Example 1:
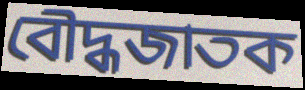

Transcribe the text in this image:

বৌদ্ধজাতক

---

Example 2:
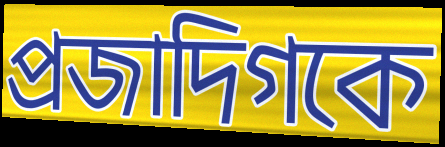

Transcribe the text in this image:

প্রজাদিগকে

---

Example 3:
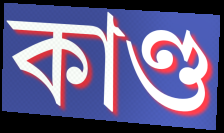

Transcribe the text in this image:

কাণ্ড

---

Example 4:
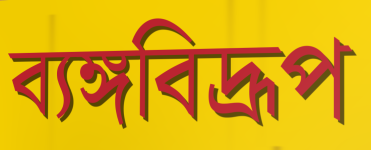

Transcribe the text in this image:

ব্যঙ্গবিদ্রূপ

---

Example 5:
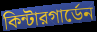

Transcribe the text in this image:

কিন্টারগার্ডেন